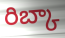
రిబ్కా